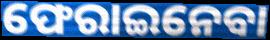
ଫେରାଇନେବା